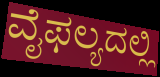
ವೈಫಲ್ಯದಲ್ಲಿ